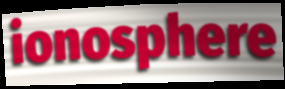
ionosphere